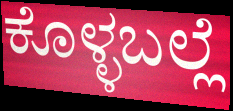
ಕೊಳ್ಳಬಲ್ಲೆ